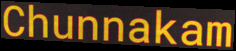
Chunnakam